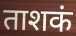
ताशकं